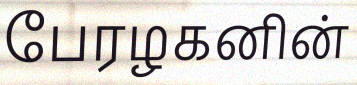
பேரழகனின்